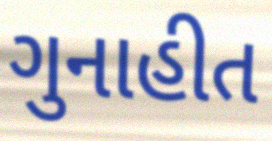
ગુનાહીત